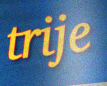
trije